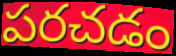
పరచడం